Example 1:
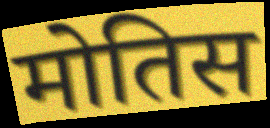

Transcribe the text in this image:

मोतिस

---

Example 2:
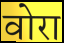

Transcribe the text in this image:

वोरा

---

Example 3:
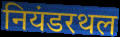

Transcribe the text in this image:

नियंडरथल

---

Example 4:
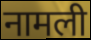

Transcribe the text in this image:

नामली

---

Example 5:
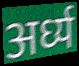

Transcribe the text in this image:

अर्ध्य